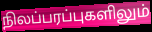
நிலப்பரப்புகளிலும்